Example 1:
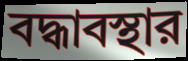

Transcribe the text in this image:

বদ্ধাবস্থার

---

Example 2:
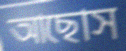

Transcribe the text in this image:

আছোস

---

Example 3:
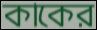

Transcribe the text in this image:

কাকের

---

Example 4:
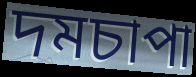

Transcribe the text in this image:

দমচাপা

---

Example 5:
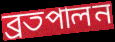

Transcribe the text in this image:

ব্রতপালন